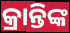
କ୍ରାନ୍ତିଙ୍କ